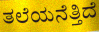
ತಲೆಯನೆತ್ತಿದೆ